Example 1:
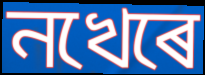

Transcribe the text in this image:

নখেৰে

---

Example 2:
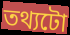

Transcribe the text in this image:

তথ্যটো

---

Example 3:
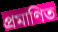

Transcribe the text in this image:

প্ৰমাণিত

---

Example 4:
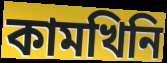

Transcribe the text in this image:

কামখিনি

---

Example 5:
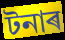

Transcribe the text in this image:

টনাৰ